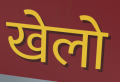
खेलो